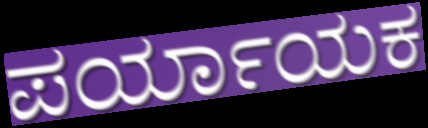
ಪರ್ಯಾಯಕ